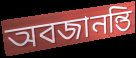
অবজানন্তি